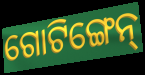
ଗୋଟିଙ୍ଗେନ୍